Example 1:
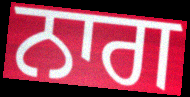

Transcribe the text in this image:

ਨਾਗ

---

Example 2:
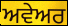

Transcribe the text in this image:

ਅਵੇਅਰ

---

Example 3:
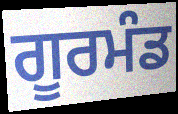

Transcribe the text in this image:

ਗੂਰਮੰਡ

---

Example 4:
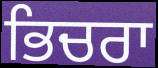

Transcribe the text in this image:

ਭਿਚਰਾ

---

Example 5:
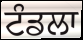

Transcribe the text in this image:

ਟੰਡਲਾ